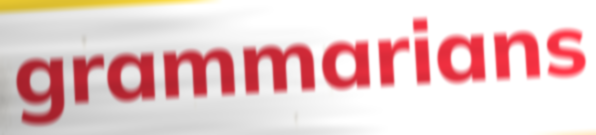
grammarians